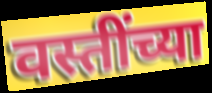
वस्तींच्या